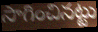
సాగించినట్టు